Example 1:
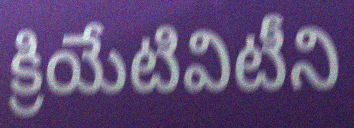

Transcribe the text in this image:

క్రియేటివిటీని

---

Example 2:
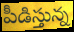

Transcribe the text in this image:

పీడిస్తున్న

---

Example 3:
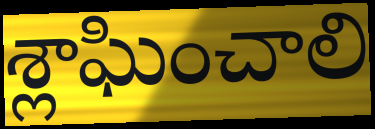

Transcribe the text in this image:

శ్లాఘించాలి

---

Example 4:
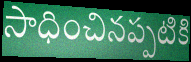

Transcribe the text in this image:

సాధించినప్పటికి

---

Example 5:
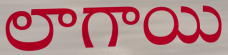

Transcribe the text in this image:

లాగాయి